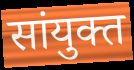
सांयुक्त